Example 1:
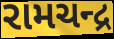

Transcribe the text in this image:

રામચન્દ્ર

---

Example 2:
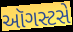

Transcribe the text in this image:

ઑગસ્ટસે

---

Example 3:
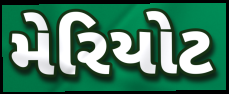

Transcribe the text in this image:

મેરિયોટ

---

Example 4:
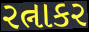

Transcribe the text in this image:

રત્નાકર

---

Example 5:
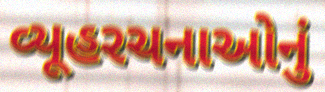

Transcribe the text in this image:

વ્યૂહરચનાઓનું